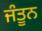
ਜੰਤੂਨ